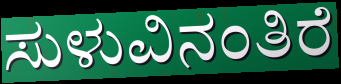
ಸುಳುವಿನಂತಿರೆ